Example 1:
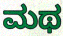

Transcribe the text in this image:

ಮಥ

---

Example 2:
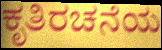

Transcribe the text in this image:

ಕೃತಿರಚನೆಯ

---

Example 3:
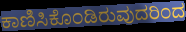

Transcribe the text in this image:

ಕಾಣಿಸಿಕೊಂಡಿರುವುದರಿಂದ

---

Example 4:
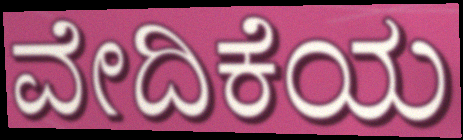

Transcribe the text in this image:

ವೇದಿಕೆಯ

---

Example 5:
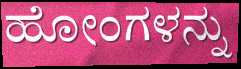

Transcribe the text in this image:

ಹೋಂಗಳನ್ನು